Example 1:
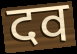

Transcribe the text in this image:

दव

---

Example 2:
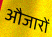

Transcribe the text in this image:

औजारों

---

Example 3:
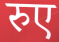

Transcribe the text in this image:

रुए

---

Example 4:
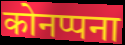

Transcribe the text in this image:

कोनप्पना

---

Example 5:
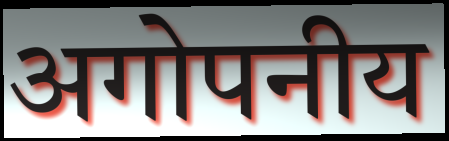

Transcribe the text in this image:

अगोपनीय